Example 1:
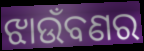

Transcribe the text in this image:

ଝାଉଁବଣର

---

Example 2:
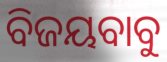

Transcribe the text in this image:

ବିଜୟବାବୁ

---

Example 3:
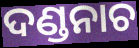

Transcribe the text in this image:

ଦଣ୍ଡନାଚ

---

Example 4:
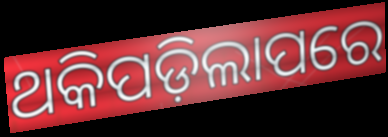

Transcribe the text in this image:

ଥକିପଡ଼ିଲାପରେ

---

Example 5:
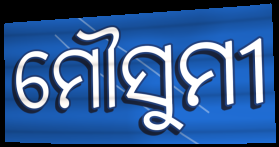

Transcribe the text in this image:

ମୌସୁମୀ